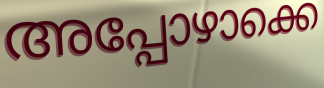
അപ്പോഴാക്കെ